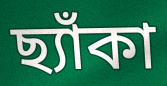
ছ্যাঁকা